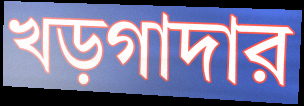
খড়গাদার